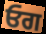
ਓਗ